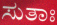
ಸುತಾಃ